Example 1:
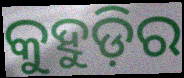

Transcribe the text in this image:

କୁହୁଡ଼ିର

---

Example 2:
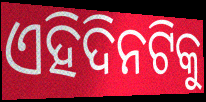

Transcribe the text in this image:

ଏହିଦିନଟିକୁ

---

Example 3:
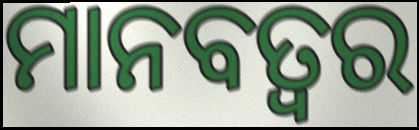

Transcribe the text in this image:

ମାନବତ୍ୱର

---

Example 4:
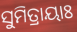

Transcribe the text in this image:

ସୁମିତ୍ରାୟାଃ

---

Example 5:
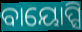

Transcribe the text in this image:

ବାୟୋପ୍ସି